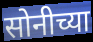
सोनीच्या